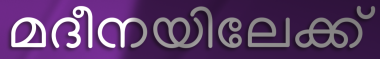
മദീനയിലേക്ക്